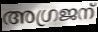
അഗ്രജന്